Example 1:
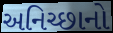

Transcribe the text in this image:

અનિચ્છાનો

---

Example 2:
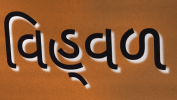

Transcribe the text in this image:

વિહ્‌વળ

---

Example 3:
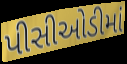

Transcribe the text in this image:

પીસીઓડીમાં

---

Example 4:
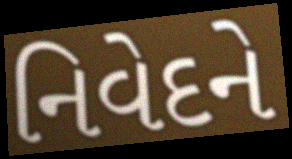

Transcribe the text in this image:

નિવેદને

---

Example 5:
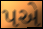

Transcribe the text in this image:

પએ